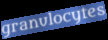
granulocytes